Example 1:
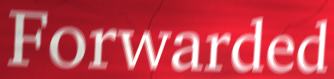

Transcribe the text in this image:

Forwarded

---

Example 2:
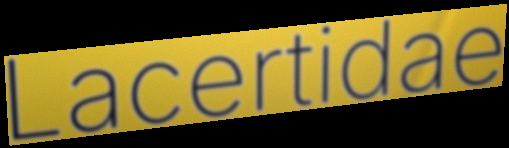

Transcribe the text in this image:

Lacertidae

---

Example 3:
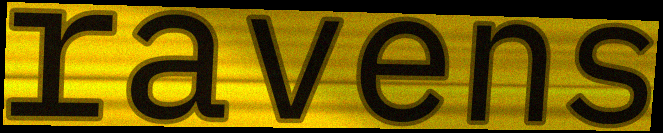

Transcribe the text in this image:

ravens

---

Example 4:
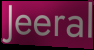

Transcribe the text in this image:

Jeeral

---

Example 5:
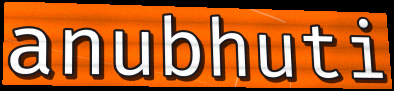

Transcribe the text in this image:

anubhuti